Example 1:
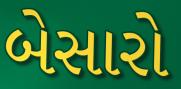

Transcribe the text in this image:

બેસારો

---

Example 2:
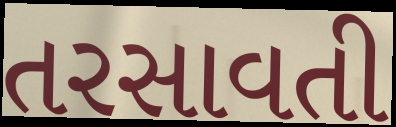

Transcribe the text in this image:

તરસાવતી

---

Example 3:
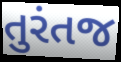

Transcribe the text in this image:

તુરંતજ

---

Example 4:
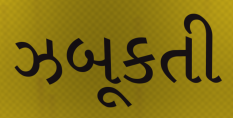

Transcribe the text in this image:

ઝબૂકતી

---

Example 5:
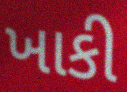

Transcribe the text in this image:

ખાકી